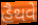
હૈથવે